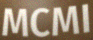
MCMI